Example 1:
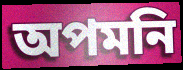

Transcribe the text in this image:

অপমনি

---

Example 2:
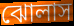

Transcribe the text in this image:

ঝোলাস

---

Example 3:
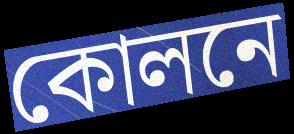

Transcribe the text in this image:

কোলনে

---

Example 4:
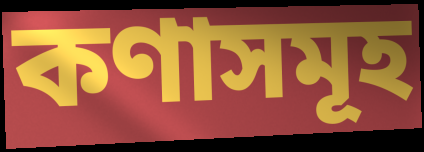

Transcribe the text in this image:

কণাসমূহ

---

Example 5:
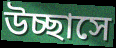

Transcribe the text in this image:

উচ্ছাসে